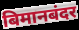
बिमानबंदर